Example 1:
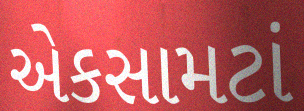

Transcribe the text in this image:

એકસામટાં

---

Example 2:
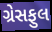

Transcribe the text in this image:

ગ્રેસફુલ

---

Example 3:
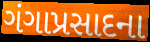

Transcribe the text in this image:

ગંગાપ્રસાદના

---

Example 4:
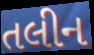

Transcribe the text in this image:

તલીન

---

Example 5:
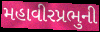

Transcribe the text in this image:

મહાવીરપ્રભુની